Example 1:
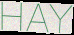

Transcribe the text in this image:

HAY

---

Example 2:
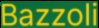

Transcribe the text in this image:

Bazzoli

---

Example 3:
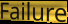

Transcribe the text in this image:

Failure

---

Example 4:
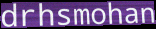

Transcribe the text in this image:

drhsmohan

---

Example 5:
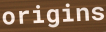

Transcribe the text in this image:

origins